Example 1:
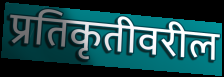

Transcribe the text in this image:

प्रतिकृतीवरील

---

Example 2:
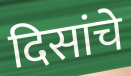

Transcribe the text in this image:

दिसांचे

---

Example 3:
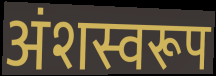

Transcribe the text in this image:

अंशस्वरूप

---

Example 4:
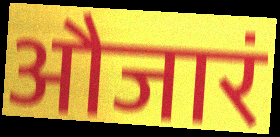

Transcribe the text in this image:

औजारं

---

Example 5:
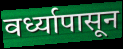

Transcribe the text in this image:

वर्ध्यापासून